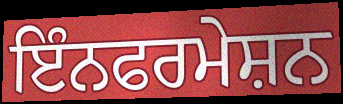
ਇੰਨਫਰਮੇਸ਼ਨ